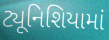
ટ્યૂનિશિયામાં